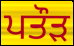
ਪਤੌੜ